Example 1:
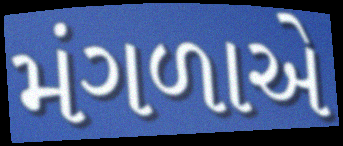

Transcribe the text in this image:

મંગળાએ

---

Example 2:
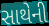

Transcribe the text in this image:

સાથેની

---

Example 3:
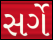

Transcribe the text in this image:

સર્ગે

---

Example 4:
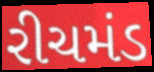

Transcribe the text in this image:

રીચમંડ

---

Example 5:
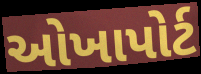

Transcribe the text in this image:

ઓખાપોર્ટ